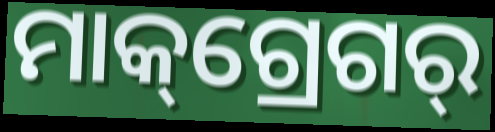
ମାକ୍‌ଗ୍ରେଗର୍